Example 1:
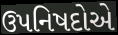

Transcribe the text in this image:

ઉપનિષદોએ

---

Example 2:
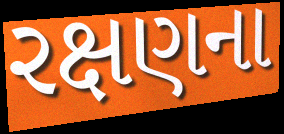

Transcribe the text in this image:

રક્ષણના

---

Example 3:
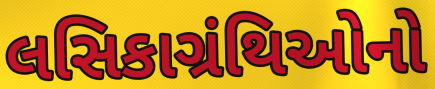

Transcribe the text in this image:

લસિકાગ્રંથિઓનો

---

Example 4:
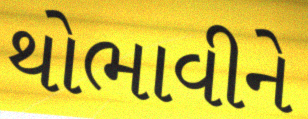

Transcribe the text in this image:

થોભાવીને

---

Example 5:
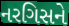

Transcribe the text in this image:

નરગિસને